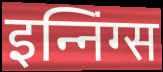
इन्निंग्स